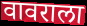
वावराला